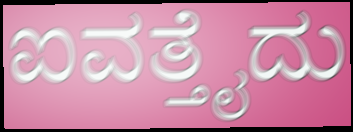
ಐವತ್ತೈದು